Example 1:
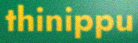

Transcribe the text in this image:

thinippu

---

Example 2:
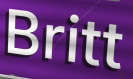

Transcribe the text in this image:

Britt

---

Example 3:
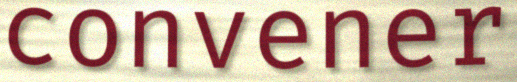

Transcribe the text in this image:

convener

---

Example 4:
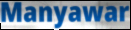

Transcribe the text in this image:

Manyawar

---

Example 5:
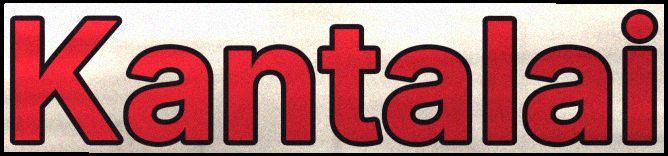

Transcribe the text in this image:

Kantalai